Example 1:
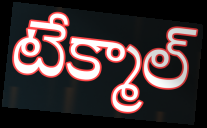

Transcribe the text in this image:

టేక్మాల్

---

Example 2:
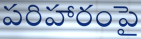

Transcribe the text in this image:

పరిహారంపై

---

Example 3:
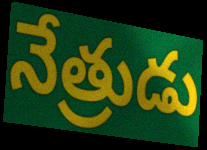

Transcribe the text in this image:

నేత్రుడు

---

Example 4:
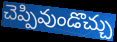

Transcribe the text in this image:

చెప్పివుండొచ్చు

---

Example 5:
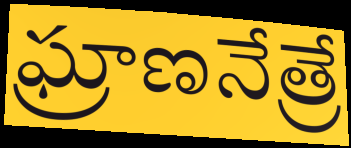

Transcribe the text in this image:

ఘ్రాణనేత్రే